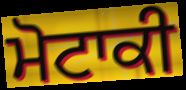
ਮੋਟਾਕੀ